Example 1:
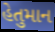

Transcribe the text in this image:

હેતુમાન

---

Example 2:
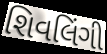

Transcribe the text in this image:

શિવલિંગી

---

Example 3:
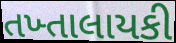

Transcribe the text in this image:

તખ્તાલાયકી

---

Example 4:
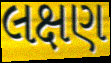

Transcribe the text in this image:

લક્ષણ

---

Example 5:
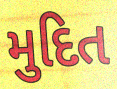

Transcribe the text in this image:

મુદિત